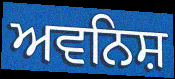
ਅਵਨਿਸ਼